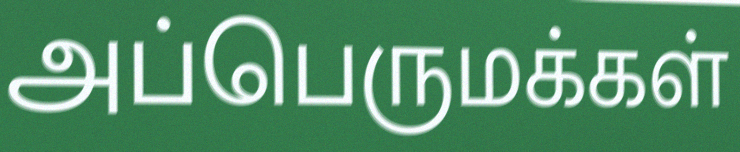
அப்பெருமக்கள்